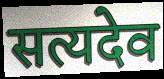
सत्यदेव